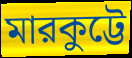
মারকুট্টে